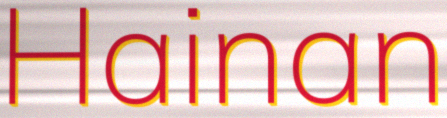
Hainan